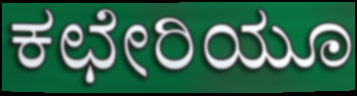
ಕಛೇರಿಯೂ